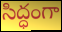
సిద్ధంగా